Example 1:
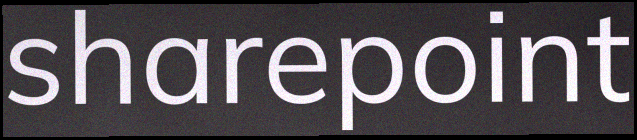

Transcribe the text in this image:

sharepoint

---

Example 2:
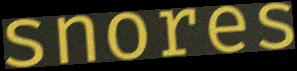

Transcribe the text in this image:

snores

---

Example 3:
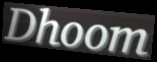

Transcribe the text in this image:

Dhoom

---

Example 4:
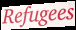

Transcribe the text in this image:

Refugees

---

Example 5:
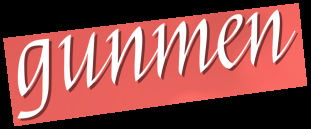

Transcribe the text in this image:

gunmen